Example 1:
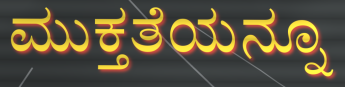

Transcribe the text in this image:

ಮುಕ್ತತೆಯನ್ನೂ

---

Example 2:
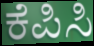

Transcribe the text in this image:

ಕೆಪಿಸಿ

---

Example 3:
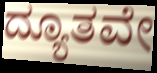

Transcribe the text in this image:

ದ್ಯೂತವೇ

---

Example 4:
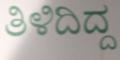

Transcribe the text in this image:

ತಿಳಿದಿದ್ದ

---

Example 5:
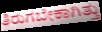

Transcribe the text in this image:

ತಿರುಗಬೇಕಾಗಿತ್ತು